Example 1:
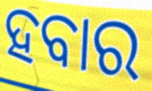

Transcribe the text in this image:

ହବାର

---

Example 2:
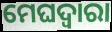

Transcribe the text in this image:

ମେଘଦ୍ୱାରା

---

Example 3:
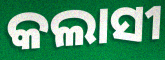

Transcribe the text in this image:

କଲାସୀ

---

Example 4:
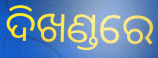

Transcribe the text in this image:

ଦିଖଣ୍ଡରେ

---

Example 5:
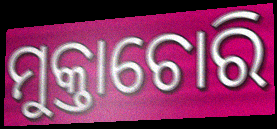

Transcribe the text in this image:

ମୁକ୍ତାଚୋରି